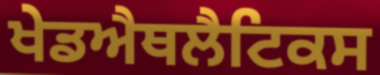
ਖੇਡਐਥਲੈਟਿਕਸ